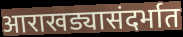
आराखड्यासंदर्भात